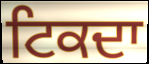
ਟਿਕਦਾ